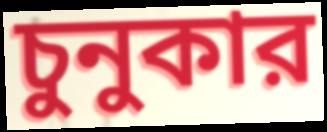
চুনুকার